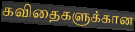
கவிதைகளுக்கான